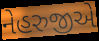
નેહરુજીએ